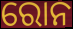
ରୋନ